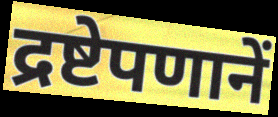
द्रष्टेपणानें